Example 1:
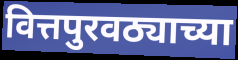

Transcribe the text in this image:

वित्तपुरवठ्याच्या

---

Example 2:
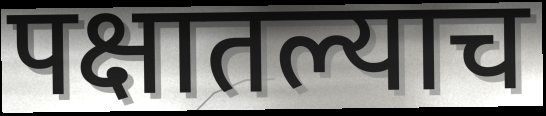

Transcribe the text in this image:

पक्षातल्याच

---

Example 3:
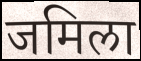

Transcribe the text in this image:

जमिला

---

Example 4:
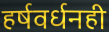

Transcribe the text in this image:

हर्षवर्धनही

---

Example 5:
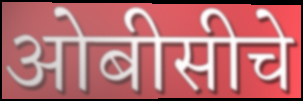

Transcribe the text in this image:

ओबीसीचे